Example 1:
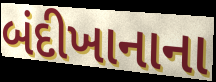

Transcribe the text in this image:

બંદીખાનાના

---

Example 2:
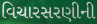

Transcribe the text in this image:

વિચારસરણીની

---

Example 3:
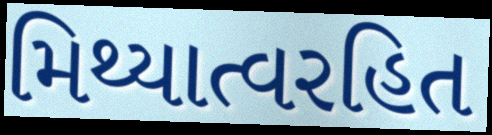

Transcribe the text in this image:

મિથ્યાત્વરહિત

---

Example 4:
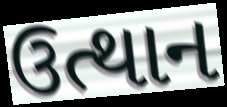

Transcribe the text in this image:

ઉત્થાન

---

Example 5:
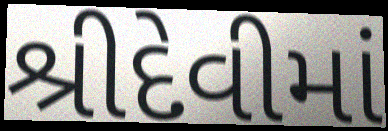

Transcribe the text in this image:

શ્રીદેવીમાં